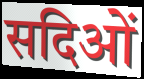
सदिओं